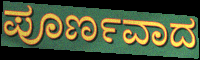
ಪೂರ್ಣವಾದ